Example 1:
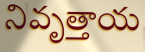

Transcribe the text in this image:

నివృత్తాయ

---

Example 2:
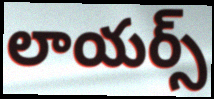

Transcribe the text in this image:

లాయర్స్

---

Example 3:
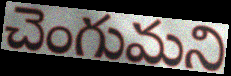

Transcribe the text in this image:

చెంగుమని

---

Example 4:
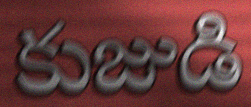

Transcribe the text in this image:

కుజుడి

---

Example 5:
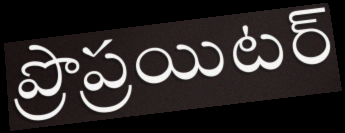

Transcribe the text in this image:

ప్రొప్రయిటర్